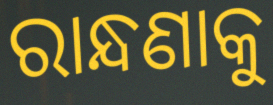
ରାନ୍ଧଣାକୁ